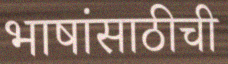
भाषांसाठीची